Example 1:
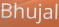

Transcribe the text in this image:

Bhujal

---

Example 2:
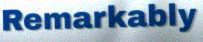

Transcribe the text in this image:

Remarkably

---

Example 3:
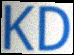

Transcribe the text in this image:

KD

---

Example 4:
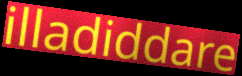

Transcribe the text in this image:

illadiddare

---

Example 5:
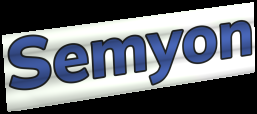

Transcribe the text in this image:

Semyon